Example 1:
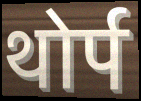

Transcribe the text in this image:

थोर्प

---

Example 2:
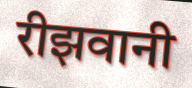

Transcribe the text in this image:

रीझवानी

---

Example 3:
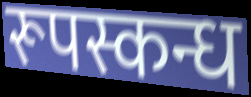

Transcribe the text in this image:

रूपस्कन्ध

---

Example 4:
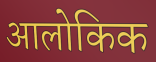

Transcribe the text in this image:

आलोकिक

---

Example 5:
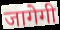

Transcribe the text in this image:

जागेगी